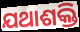
ଯଥାଶକ୍ତି